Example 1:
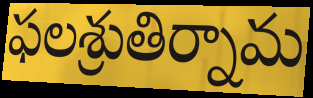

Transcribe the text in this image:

ఫలశ్రుతిర్నామ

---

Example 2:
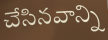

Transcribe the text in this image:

చేసినవాన్ని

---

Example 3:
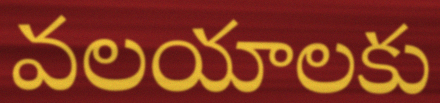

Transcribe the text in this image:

వలయాలకు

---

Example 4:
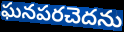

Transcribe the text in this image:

ఘనపరచెదను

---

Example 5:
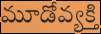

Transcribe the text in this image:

మూడోవ్యక్తి